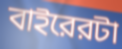
বাইরেরটা